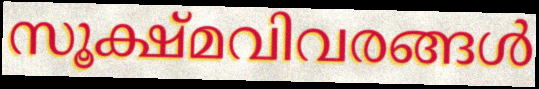
സൂക്ഷ്മവിവരങ്ങൾ